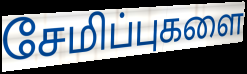
சேமிப்புகளை